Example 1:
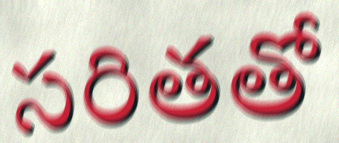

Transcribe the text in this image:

సరితతో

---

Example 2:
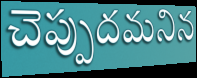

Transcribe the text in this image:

చెప్పుదమనిన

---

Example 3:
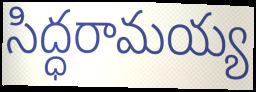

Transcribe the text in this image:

సిద్ధరామయ్య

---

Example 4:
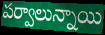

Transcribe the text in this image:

పర్వాలున్నాయి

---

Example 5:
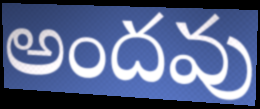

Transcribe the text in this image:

అందవు